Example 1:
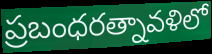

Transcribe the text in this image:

ప్రబంధరత్నావళిలో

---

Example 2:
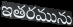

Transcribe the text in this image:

ఇతరమును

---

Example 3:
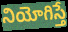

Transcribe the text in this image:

నియోగిస్తే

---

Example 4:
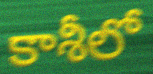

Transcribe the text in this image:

కాశీలో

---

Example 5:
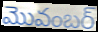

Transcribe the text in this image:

మొవంబర్